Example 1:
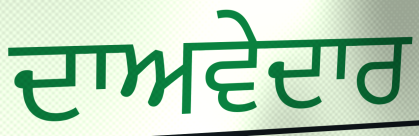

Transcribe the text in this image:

ਦਾਅਵੇਦਾਰ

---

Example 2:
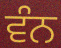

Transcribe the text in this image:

ਵੰਨ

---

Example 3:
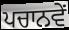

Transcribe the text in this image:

ਪਚਾਨਵੇਂ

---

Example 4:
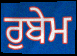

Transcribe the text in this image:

ਰੁਬੇਮ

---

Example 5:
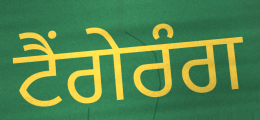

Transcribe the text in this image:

ਟੈਂਗੇਰੰਗ